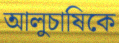
আলুচাষিকে